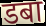
डबा